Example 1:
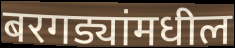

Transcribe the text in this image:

बरगड्यांमधील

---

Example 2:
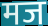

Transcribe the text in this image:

मज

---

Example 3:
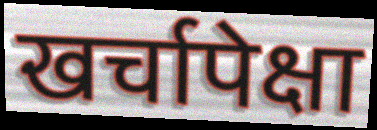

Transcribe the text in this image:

खर्चापेक्षा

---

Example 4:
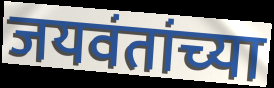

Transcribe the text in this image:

जयवंतांच्या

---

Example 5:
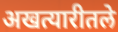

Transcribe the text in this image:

अखत्यारीतले